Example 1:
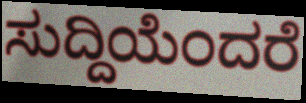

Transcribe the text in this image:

ಸುದ್ದಿಯೆಂದರೆ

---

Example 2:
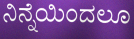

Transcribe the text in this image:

ನಿನ್ನೆಯಿಂದಲೂ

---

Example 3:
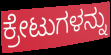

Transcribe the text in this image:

ಕ್ರೇಟುಗಳನ್ನು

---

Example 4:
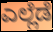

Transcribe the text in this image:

ಎಲ್ಲೆಡೆ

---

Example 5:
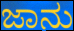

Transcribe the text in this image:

ಜಾನು